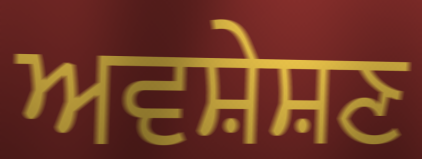
ਅਵਸ਼ੇਸ਼ਣ